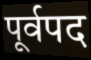
पूर्वपद